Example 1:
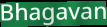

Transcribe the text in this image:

Bhagavan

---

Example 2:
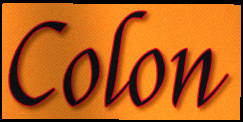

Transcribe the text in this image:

Colon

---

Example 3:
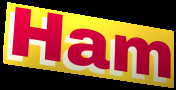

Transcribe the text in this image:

Ham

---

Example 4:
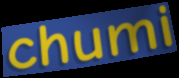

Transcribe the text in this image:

chumi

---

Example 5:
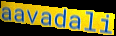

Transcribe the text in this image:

aavadali